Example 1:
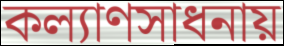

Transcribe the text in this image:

কল্যাণসাধনায়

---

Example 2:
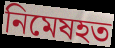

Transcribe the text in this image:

নিমেষহত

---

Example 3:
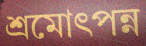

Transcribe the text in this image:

শ্রমোৎপন্ন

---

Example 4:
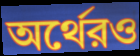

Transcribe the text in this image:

অর্থেরও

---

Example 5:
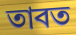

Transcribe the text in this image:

তাবত